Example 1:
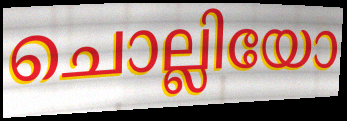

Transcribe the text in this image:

ചൊല്ലിയോ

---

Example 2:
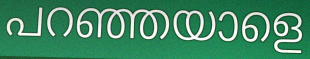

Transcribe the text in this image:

പറഞ്ഞയാളെ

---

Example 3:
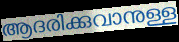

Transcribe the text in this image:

ആദരിക്കുവാനുള്ള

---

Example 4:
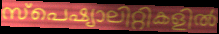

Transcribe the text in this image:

സ്പെഷ്യാലിറ്റികളിൽ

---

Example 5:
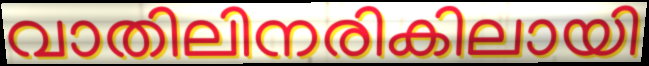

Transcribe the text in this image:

വാതിലിനരികിലായി